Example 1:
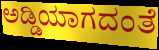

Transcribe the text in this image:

ಅಡ್ಡಿಯಾಗದಂತೆ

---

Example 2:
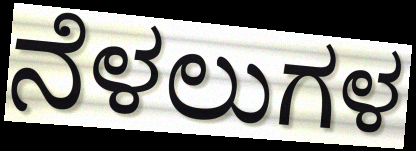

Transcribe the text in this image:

ನೆಳಲುಗಳ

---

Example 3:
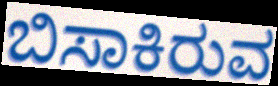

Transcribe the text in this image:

ಬಿಸಾಕಿರುವ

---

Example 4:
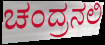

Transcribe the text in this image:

ಚಂದ್ರನಲಿ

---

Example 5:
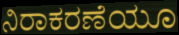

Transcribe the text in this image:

ನಿರಾಕರಣೆಯೂ